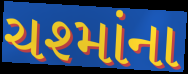
ચશ્માંના